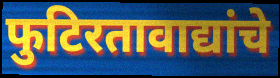
फुटिरतावाद्यांचे